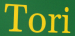
Tori